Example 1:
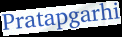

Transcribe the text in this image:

Pratapgarhi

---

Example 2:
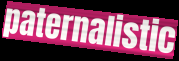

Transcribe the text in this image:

paternalistic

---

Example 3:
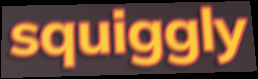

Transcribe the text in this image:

squiggly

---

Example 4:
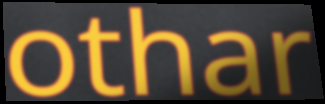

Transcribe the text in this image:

othar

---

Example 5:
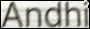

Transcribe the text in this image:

Andhi